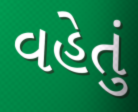
વહેતું